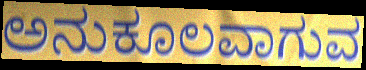
ಅನುಕೂಲವಾಗುವ